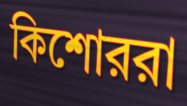
কিশোররা